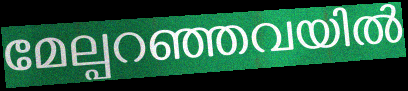
മേല്പറഞ്ഞവയിൽ